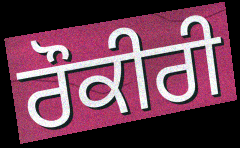
ਰੌਕੀਰੀ